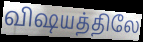
விஷயத்திலே